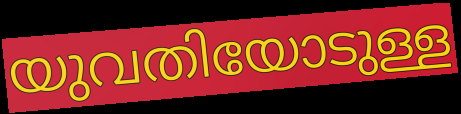
യുവതിയോടുള്ള